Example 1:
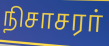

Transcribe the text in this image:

நிசாசரர்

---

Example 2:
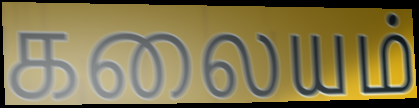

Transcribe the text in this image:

கலையம்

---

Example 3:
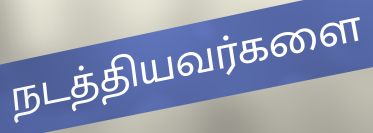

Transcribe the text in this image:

நடத்தியவர்களை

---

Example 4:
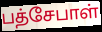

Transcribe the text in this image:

பத்சேபாள்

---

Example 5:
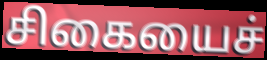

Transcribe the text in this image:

சிகையைச்